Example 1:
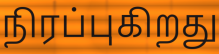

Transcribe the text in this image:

நிரப்புகிறது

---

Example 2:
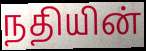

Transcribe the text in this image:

நதியின்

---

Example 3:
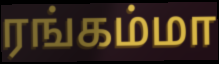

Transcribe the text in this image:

ரங்கம்மா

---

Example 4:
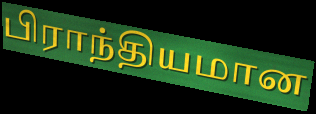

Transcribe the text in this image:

பிராந்தியமான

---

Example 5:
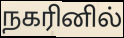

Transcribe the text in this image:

நகரினில்